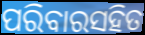
ପରିବାରସହିତ